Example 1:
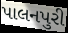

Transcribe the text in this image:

પાલનપુરી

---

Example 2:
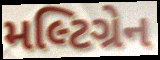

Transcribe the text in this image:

મલ્ટિગ્રેન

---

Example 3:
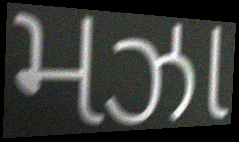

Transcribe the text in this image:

મઝા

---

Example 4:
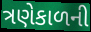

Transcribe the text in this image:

ત્રણેકાળની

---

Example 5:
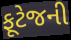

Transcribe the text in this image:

ફૂટેજની